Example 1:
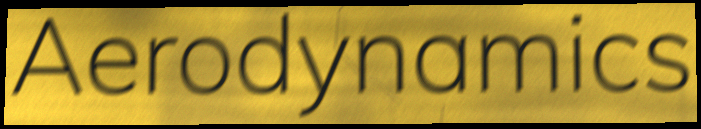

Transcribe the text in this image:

Aerodynamics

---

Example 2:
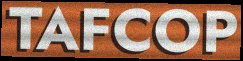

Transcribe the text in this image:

TAFCOP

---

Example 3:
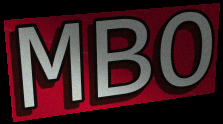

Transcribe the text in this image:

MBO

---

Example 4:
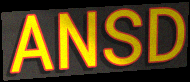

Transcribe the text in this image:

ANSD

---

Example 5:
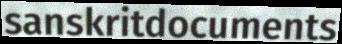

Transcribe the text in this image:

sanskritdocuments